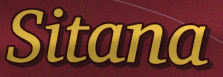
Sitana